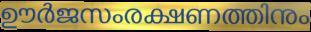
ഊർജസംരക്ഷണത്തിനും